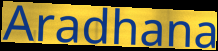
Aradhana